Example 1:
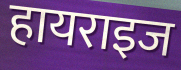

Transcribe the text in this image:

हायराइज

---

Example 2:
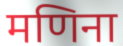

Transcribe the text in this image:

मणिना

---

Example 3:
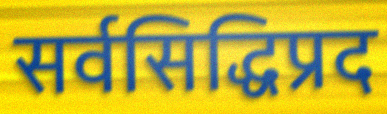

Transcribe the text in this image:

सर्वसिद्धिप्रद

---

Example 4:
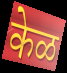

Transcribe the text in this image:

केळ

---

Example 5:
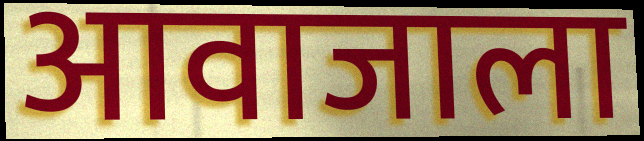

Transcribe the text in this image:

आवाजाला